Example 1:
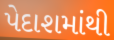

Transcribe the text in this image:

પેદાશમાંથી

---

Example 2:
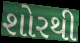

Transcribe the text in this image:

શોરથી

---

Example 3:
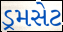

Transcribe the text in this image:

ડ્રમસેટ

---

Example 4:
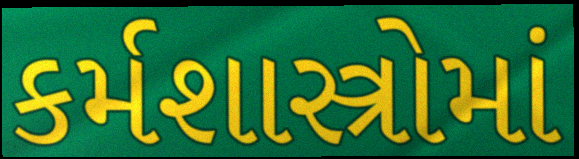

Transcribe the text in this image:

કર્મશાસ્ત્રોમાં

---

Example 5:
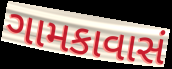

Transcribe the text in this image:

ગામકાવાસં